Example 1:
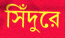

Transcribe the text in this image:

সিঁদুরে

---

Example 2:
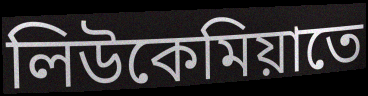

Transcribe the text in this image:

লিউকেমিয়াতে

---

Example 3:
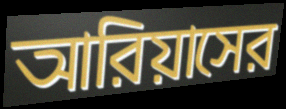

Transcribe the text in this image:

আরিয়াসের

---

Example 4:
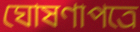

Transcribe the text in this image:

ঘোষণাপত্রে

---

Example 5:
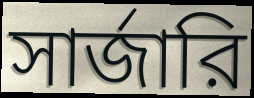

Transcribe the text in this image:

সার্জারি